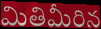
మితిమీరిన